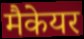
मैकेयर